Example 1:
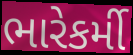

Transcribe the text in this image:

ભારેકર્મી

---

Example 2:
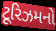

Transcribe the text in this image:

ટૂરિઝમનો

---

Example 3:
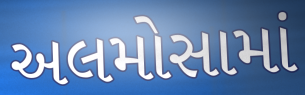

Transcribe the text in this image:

અલમોસામાં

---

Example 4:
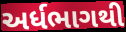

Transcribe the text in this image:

અર્ધભાગથી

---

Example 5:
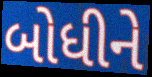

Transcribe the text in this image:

બોધીને